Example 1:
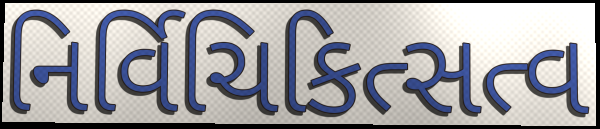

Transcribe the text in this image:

નિર્વિચિકિત્સત્વ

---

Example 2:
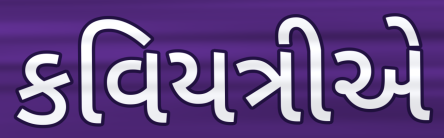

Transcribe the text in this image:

કવિયત્રીએ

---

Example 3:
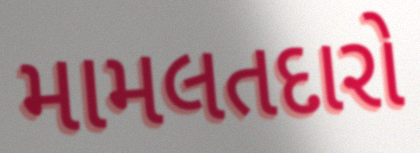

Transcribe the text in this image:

મામલતદારો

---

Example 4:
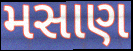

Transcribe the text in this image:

મસાણ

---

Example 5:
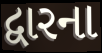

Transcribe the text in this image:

દ્વારના